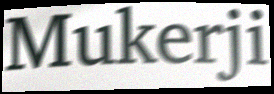
Mukerji